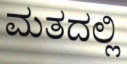
ಮತದಲ್ಲಿ